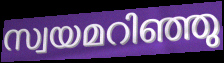
സ്വയമറിഞ്ഞു